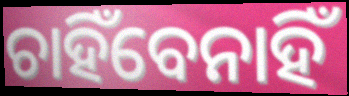
ଚାହିଁବେନାହିଁ